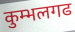
कुम्भलगढ